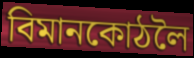
বিমানকোঠলৈ